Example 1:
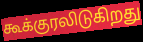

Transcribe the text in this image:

கூக்குரலிடுகிறது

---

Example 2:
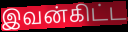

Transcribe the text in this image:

இவன்கிட்ட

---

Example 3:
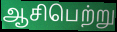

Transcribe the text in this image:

ஆசிபெற்று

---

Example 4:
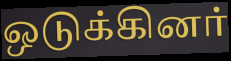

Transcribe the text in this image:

ஒடுக்கினர்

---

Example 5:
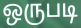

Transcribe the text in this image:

ஒருபடி